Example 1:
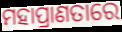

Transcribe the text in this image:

ମହାପ୍ରାଣତାରେ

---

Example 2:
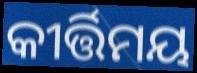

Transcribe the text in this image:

କୀର୍ତ୍ତିମୟ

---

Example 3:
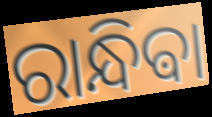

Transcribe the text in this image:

ରାନ୍ଧିଵା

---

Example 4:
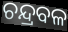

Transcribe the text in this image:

ଚନ୍ଦ୍ରବଳ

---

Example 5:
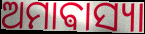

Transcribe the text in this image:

ଅମାଵାସ୍ୟା